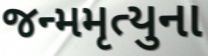
જન્મમૃત્યુના